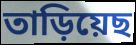
তাড়িয়েছ